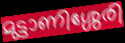
മുട്ടാണിശ്ശേരി